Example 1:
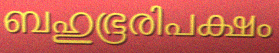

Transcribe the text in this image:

ബഹുഭൂരിപക്ഷം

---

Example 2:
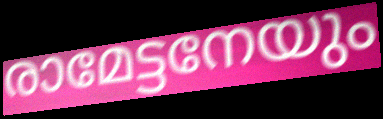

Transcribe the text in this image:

രാമേട്ടനേയും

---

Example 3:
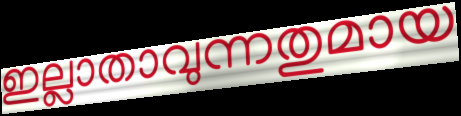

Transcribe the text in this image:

ഇല്ലാതാവുന്നതുമായ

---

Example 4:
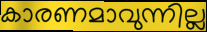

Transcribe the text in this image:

കാരണമാവുന്നില്ല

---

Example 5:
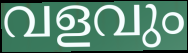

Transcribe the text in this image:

വളവും